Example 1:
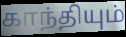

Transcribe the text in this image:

காந்தியும்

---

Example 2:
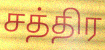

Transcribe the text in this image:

சத்திர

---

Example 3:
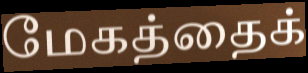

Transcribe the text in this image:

மேகத்தைக்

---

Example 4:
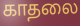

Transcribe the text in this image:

காதலை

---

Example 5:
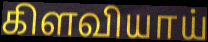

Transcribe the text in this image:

கிளவியாய்